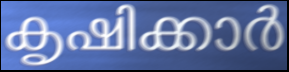
കൃഷിക്കാർ